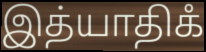
இத்யாதிகஂ